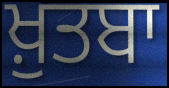
ਖ਼ੁਤਬਾ